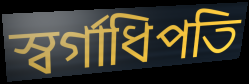
স্বর্গাধিপতি